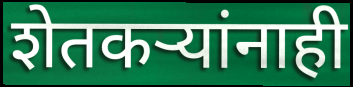
शेतकऱ्यांनाही